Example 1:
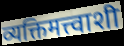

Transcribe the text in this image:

व्यक्तिमत्त्वाशी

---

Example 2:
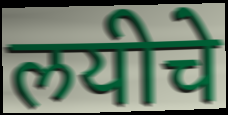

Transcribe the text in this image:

लयीचे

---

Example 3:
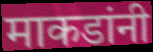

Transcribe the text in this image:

माकडांनी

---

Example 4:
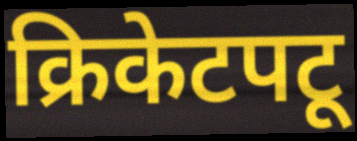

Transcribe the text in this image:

क्रिकेटपटू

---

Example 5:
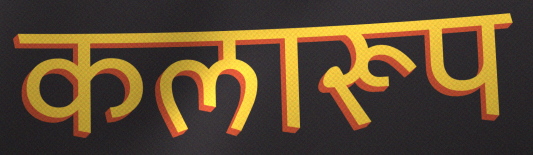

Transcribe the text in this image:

कलारूप